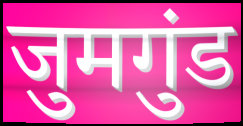
जुमगुंड